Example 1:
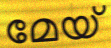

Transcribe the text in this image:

മേയ്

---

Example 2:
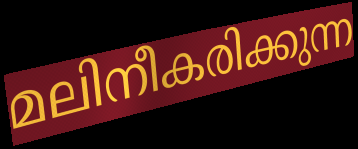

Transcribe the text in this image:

മലിനീകരിക്കുന്ന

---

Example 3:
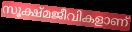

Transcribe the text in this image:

സൂക്ഷ്മജീവികളാണ്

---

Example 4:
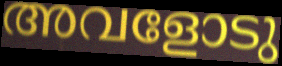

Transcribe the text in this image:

അവളോടു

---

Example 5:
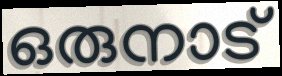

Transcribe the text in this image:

ഒരുനാട്